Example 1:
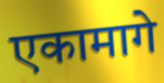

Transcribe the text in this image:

एकामागे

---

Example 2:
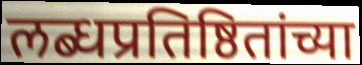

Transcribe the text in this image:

लब्धप्रतिष्ठितांच्या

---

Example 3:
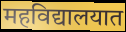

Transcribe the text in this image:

महविद्यालयात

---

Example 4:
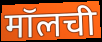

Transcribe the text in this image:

मॉलची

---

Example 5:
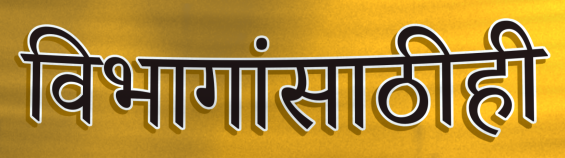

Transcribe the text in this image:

विभागांसाठीही